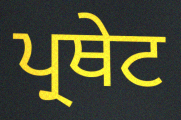
ਪ੍ਰਥੇਟ